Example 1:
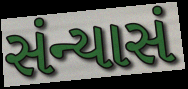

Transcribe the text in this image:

સંન્યાસં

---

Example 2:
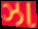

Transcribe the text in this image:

ઝા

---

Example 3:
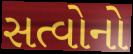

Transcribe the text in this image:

સત્વોનો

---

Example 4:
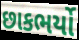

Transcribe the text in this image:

છાકભર્યો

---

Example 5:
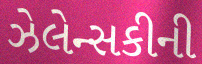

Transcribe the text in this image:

ઝેલેન્સકીની